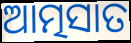
ଆତ୍ମସାତ